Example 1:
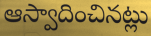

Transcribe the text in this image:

ఆస్వాదించినట్లు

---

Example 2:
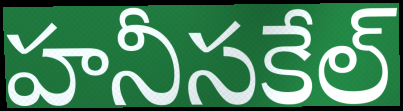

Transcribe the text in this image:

హనీసకేల్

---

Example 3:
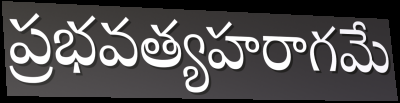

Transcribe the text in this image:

ప్రభవత్యహరాగమే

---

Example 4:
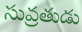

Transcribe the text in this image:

సువ్రతుడు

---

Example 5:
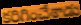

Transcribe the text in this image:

కరిగించేశాడు